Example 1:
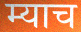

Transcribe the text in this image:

म्याच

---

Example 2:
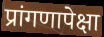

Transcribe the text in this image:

प्रांगणापेक्षा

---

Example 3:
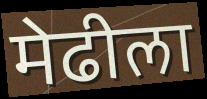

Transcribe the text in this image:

मेढीला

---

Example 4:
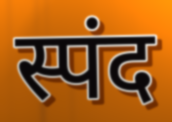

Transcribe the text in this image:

स्पंद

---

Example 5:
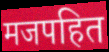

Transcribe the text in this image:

मजपहित